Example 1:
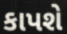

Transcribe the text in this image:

કાપશે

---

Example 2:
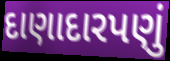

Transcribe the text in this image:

દાણાદારપણું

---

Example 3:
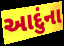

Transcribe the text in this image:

આદુંના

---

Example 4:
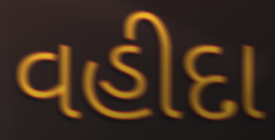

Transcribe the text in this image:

વહીદા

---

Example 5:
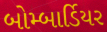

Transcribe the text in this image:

બોમ્બાર્ડિયર